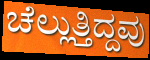
ಚೆಲ್ಲುತ್ತಿದ್ದವು